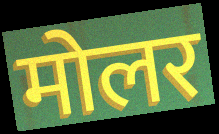
मोलर